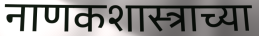
नाणकशास्त्राच्या